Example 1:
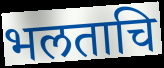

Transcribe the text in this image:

भलताचि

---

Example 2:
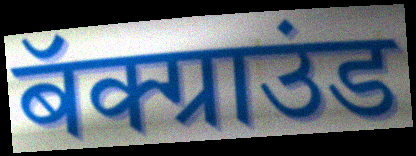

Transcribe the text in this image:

बॅक्ग्राउंड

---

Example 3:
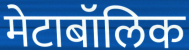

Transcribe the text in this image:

मेटाबॉलिक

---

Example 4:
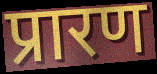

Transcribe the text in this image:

प्रारण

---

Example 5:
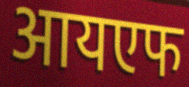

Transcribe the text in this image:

आयएफ